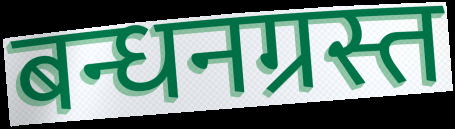
बन्धनग्रस्त